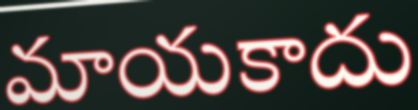
మాయకాదు